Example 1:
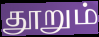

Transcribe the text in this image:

தூறும்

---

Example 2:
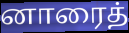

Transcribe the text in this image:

னாரைத்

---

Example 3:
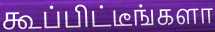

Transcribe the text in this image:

கூப்பிட்டீங்களா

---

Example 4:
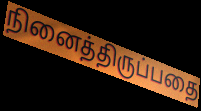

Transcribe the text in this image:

நினைத்திருப்பதை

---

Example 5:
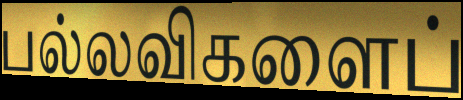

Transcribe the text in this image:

பல்லவிகளைப்